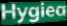
Hygiea